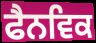
ਫੈਨਵਿਕ